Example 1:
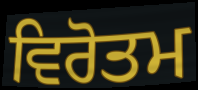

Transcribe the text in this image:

ਵਿਰੋਤਮ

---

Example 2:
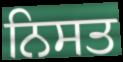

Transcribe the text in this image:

ਨਿਸਤ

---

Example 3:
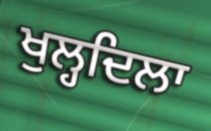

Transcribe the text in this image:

ਖੁਲ੍ਹਦਿਲਾ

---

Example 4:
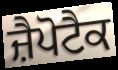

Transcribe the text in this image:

ਜ਼ੈਪੋਟੈਕ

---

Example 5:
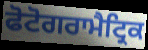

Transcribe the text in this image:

ਫੋਟੋਗਰਾਮੈਟ੍ਰਿਕ